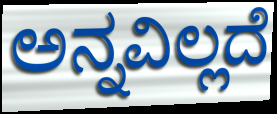
ಅನ್ನವಿಲ್ಲದೆ